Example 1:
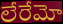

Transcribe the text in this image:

లేరేమో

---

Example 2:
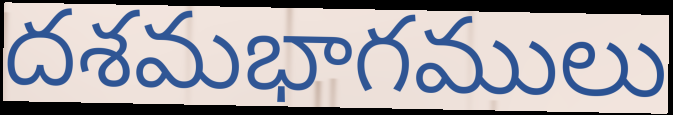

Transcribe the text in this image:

దశమభాగములు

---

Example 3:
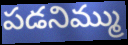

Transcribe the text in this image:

పడనిమ్ము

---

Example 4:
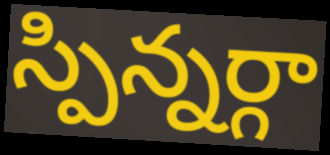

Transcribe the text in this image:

స్పిన్నర్గా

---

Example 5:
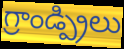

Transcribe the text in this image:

గ్రాండ్ప్రిలు